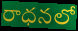
రాధనలో